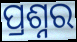
ପ୍ରଶ୍ନର